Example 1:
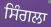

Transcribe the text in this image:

ਸਿੰਗਲਾ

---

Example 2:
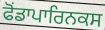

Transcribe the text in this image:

ਫੋਂਡਾਪਾਰਿਨਕਸ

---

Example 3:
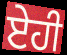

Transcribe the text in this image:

ਏਹੀ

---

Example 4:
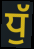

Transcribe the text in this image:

ਧੁੱ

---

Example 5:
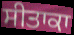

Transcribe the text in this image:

ਸੀਤਾਕਾ